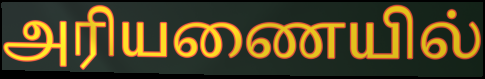
அரியணையில்